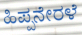
ಹಿಪ್ಪನೇರಳೆ